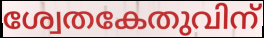
ശ്വേതകേതുവിന്